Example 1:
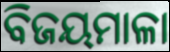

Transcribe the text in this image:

ବିଜୟମାଳା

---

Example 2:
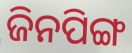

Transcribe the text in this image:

ଜିନପିଙ୍ଗ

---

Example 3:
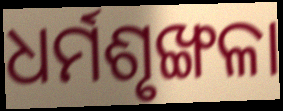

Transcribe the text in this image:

ଧର୍ମଶୃଙ୍ଖଳା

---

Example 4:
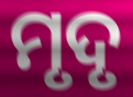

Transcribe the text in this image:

ମୃଦୃ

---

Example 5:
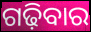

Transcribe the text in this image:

ଗଢ଼ିବାର